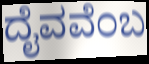
ದೈವವೆಂಬ